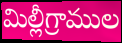
మిల్లీగ్రాముల